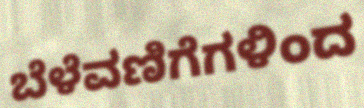
ಬೆಳೆವಣಿಗೆಗಳಿಂದ